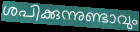
ശപിക്കുന്നുണ്ടാവും